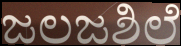
ಜಲಜಶಿಲೆ